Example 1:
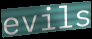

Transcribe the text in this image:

evils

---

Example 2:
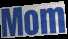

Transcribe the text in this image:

Mom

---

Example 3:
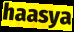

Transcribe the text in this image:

haasya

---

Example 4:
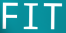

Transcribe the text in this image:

FIT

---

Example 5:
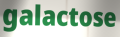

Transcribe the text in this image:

galactose